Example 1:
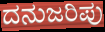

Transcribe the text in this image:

ದನುಜರಿಪು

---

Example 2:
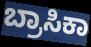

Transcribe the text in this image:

ಬ್ರಾಸಿಕಾ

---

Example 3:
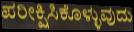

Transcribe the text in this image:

ಪರೀಕ್ಷಿಸಿಕೊಳ್ಳುವುದು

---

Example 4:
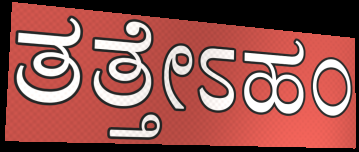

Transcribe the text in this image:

ತತ್ತೇಽಹಂ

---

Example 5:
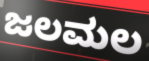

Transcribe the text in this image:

ಜಲಮಲ